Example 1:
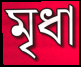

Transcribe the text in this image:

মৃধা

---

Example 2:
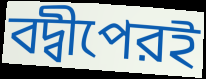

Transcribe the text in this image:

বদ্বীপেরই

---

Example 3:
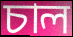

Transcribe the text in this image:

চাল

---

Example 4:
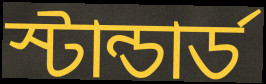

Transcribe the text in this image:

স্টান্ডার্ড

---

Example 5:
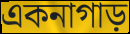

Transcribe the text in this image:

একনাগাড়